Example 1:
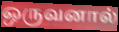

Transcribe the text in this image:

ஒருவனால்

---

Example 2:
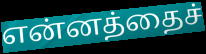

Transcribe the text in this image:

என்னத்தைச்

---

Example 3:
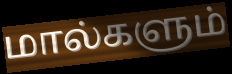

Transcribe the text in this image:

மால்களும்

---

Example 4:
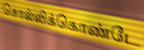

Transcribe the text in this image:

சொல்லிக்கொண்டே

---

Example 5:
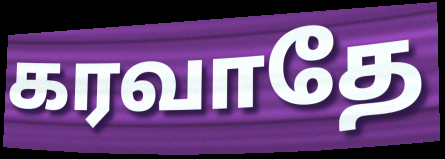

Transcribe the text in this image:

கரவாதே